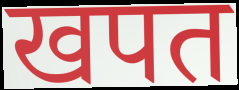
खपत